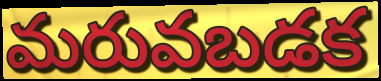
మరువబడక